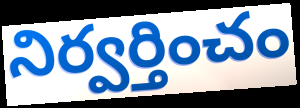
నిర్వర్తించం